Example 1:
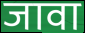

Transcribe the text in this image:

जावा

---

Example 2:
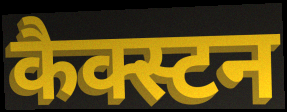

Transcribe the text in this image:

कैक्स्टन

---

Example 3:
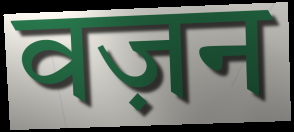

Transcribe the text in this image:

वज़न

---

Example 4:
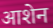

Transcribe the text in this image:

आशेन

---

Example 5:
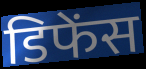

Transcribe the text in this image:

डिफेंस